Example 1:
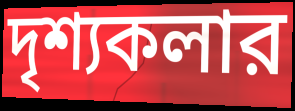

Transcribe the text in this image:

দৃশ্যকলার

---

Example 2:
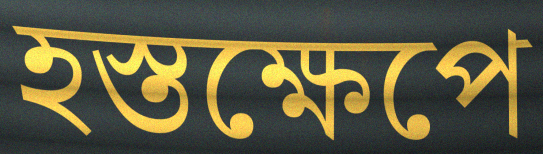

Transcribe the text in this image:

হস্তক্ষেপে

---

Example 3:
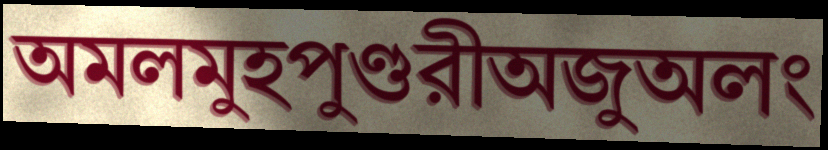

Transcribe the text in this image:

অমলমুহপুণ্ডরীঅজুঅলং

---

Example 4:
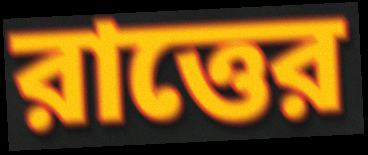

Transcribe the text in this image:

রাত্তের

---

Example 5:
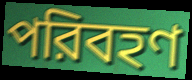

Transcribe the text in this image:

পরিবহণ